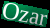
Ozar